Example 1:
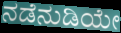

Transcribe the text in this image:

ನಡೆನುಡಿಯೇ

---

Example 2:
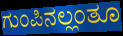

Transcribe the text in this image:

ಗುಂಪಿನಲ್ಲಂತೂ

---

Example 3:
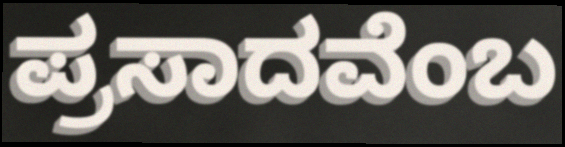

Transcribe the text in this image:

ಪ್ರಸಾದವೆಂಬ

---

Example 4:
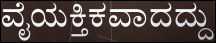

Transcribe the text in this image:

ವೈಯಕ್ತಿಕವಾದದ್ದು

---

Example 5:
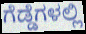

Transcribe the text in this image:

ಗೆಡ್ಡೆಗಳಲ್ಲಿ